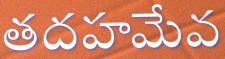
తదహమేవ